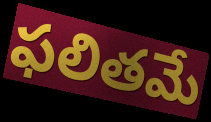
ఫలితమే